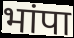
भांपा